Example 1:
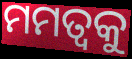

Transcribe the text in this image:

ମମତ୍ୱକୁ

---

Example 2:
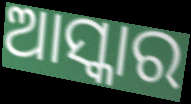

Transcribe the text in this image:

ଆସ୍କାର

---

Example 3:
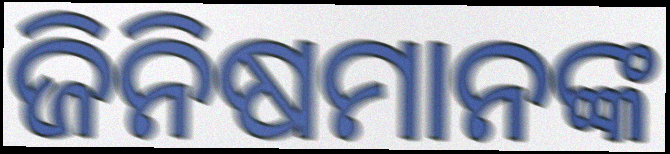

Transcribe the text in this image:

ଜିନିଷମାନଙ୍କ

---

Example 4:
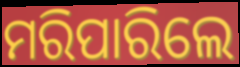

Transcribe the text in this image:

ମରିପାରିଲେ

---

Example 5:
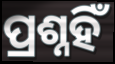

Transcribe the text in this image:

ପ୍ରଶ୍ନହିଁ